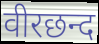
वीरछन्द